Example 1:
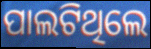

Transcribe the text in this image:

ପାଲଟିଥିଲେ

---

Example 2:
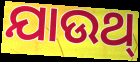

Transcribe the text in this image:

ଯାଉଥ୍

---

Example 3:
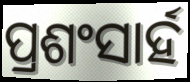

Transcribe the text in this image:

ପ୍ରଶଂସାର୍ହ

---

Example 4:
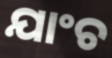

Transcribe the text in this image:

ଯାଂଚ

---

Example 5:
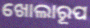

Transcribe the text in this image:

ଖୋଲାରୂପ